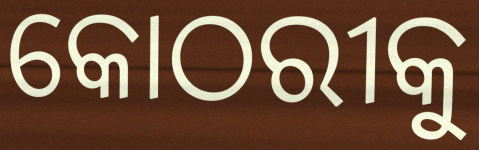
କୋଠରୀକୁ